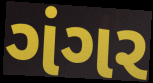
ગંગર